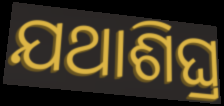
ଯଥାଶିଘ୍ର